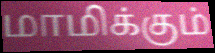
மாமிக்கும்